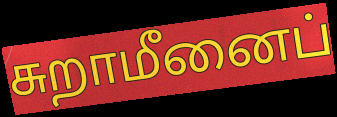
சுறாமீனைப்